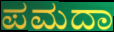
ಪಮದಾ